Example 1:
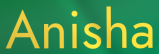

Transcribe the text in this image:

Anisha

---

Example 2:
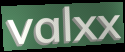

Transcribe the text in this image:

valxx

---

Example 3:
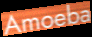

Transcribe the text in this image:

Amoeba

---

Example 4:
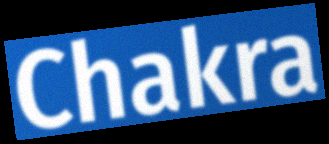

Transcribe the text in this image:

Chakra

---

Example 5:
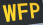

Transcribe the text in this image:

WFP